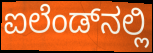
ಐಲೆಂಡ್‌ನಲ್ಲಿ